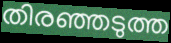
തിരഞ്ഞടുത്ത